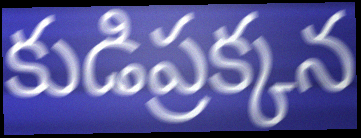
కుడిప్రక్కన